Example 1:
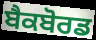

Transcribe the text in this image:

ਬੈਕਬੋਰਡ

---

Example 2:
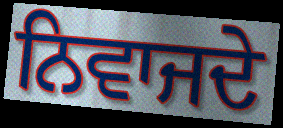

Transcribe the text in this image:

ਨਿਵਾਜਦੇ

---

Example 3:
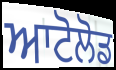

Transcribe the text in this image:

ਆਟੋਲੋਡ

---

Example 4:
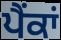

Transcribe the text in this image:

ਪੈਂਕਾਂ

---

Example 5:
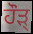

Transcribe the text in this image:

ਹੌੜ੍